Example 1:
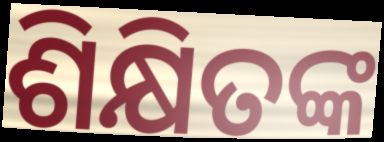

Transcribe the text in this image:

ଶିକ୍ଷିତଙ୍କ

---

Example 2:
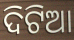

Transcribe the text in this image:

ଦିଟିଆ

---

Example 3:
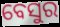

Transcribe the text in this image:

ବେସୁର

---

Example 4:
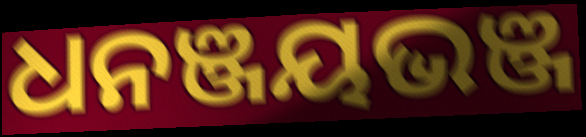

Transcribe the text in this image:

ଧନଞ୍ଜୟଭଞ୍ଜ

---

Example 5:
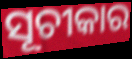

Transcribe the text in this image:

ସୂଚୀକାର